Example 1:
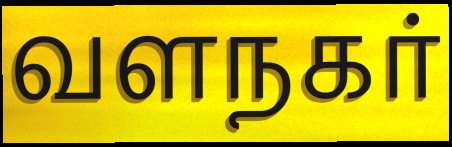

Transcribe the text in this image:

வளநகர்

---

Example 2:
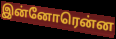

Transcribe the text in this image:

இன்னோரென்ன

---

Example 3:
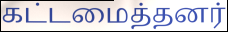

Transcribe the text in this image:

கட்டமைத்தனர்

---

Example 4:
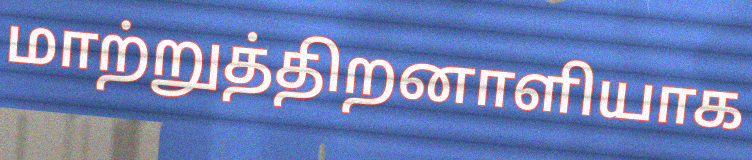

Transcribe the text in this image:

மாற்றுத்திறனாளியாக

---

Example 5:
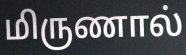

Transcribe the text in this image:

மிருணால்